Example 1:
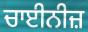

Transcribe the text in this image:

ਚਾਈਨੀਜ਼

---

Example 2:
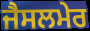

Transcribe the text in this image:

ਜੈਸਲਮੇਰ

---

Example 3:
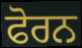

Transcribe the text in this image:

ਫੋਰਨ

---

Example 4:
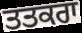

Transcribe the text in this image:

ਤਤਕਰਾ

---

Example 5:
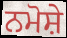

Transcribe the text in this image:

ਨਮੋਸ਼ੇ